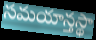
సమయాన్తస్థా